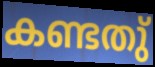
കണ്ടതു്